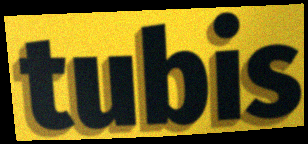
tubis